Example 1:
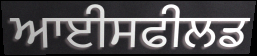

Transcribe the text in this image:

ਆਈਸਫੀਲਡ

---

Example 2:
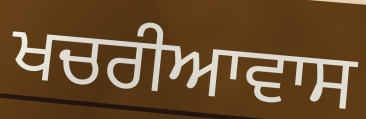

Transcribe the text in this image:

ਖਚਰੀਆਵਾਸ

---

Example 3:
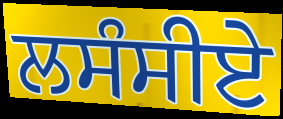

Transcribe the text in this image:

ਲਸੰਸੀਏ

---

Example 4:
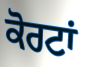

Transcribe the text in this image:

ਕੋਰਟਾਂ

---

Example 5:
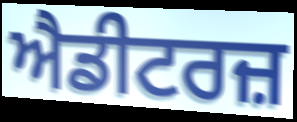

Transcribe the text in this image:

ਐਡੀਟਰਜ਼